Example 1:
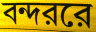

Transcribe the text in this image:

বন্দররে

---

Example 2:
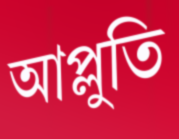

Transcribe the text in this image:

আপ্লুতি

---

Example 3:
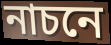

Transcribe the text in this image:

নাচনে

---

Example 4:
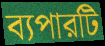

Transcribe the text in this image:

ব্যপারটি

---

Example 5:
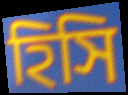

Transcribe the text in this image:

হিসি